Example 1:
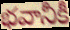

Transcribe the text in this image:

భవానీకీ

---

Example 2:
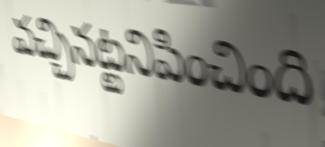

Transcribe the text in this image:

వచ్చినట్టనిపించింది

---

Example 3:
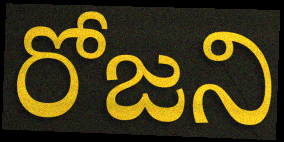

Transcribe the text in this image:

రోజని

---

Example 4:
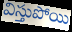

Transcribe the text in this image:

విస్తుపోయి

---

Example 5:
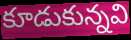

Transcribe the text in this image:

కూడుకున్నవి